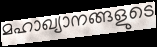
മഹാഖ്യാനങ്ങളുടെ